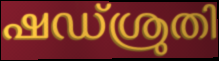
ഷഡ്ശ്രുതി